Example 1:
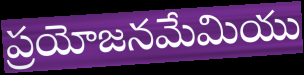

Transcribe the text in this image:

ప్రయోజనమేమియు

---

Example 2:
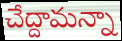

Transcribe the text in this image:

చేద్దామన్నా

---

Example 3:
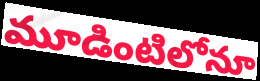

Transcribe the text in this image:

మూడింటిలోనూ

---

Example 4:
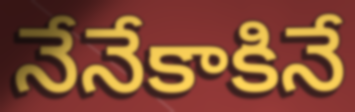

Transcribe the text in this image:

నేనేకాకినే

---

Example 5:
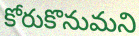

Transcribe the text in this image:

కోరుకొనుమని